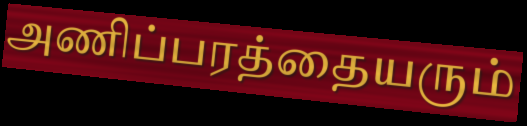
அணிப்பரத்தையரும்